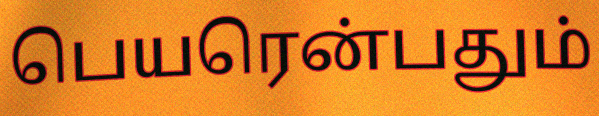
பெயரென்பதும்